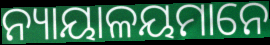
ନ୍ୟାୟାଳୟମାନେ